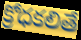
క్రోధకలితే